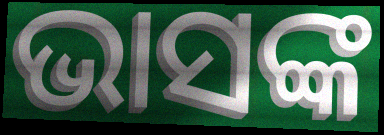
ଭାସଙ୍କ